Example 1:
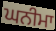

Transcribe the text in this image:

ਘਨੀਮਾ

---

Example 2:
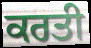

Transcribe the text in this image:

ਕਰਤੀ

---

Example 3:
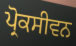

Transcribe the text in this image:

ਪ੍ਰੋਕਸੀਵਨ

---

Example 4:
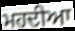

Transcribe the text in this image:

ਮਹਦੀਆ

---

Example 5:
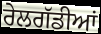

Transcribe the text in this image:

ਰੇਲਗੱਡੀਆਂ